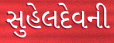
સુહેલદેવની